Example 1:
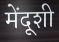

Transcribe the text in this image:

मेंदूशी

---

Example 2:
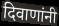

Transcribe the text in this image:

दिवाणांनी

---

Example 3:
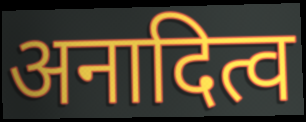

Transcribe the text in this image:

अनादित्व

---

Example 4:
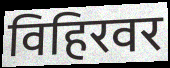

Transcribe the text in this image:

विहिरवर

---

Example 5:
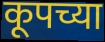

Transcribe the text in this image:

कूपच्या